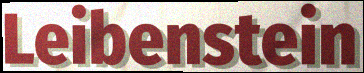
Leibenstein